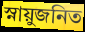
স্নায়ুজনিত